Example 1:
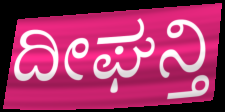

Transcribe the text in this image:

ದೀಘನ್ತಿ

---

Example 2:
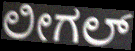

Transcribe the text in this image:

ಲೀಗಲ್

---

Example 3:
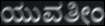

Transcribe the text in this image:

ಯುವತೀಂ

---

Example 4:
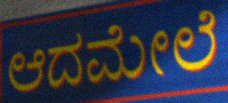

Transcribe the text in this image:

ಆದಮೇಲೆ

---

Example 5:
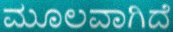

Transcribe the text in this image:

ಮೂಲವಾಗಿದೆ